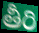
తీరి